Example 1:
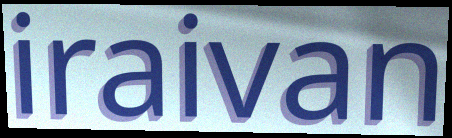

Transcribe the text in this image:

iraivan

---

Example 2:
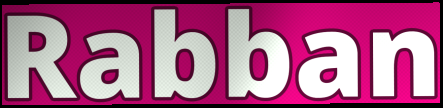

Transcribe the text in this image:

Rabban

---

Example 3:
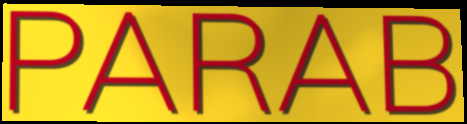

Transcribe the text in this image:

PARAB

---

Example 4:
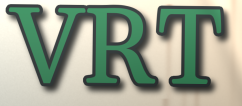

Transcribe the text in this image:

VRT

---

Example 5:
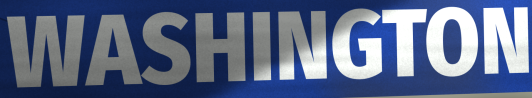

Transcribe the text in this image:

WASHINGTON